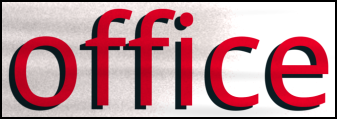
office